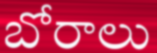
బోరాలు